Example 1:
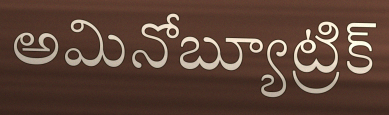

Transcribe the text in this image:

అమినోబ్యూట్రిక్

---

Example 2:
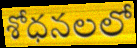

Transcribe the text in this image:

శోధనలలో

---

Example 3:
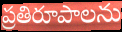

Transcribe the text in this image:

ప్రతిరూపాలను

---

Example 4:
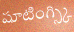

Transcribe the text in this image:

షూటింగ్స్కి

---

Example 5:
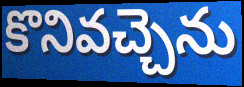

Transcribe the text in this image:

కొనివచ్చెను